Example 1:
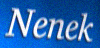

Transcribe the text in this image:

Nenek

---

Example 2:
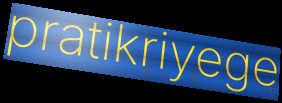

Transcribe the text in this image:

pratikriyege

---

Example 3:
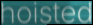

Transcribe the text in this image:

hoisted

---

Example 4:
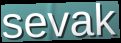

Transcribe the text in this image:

sevak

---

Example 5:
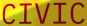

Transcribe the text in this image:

CIVIC